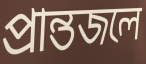
প্রান্তজলে